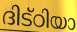
ദിട്ഠിയാ